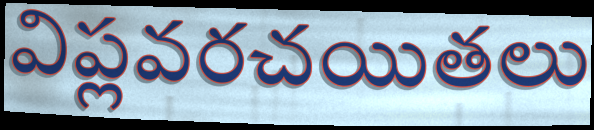
విప్లవరచయితలు